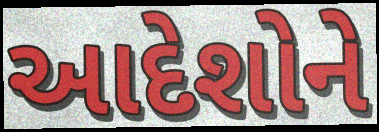
આદેશોને